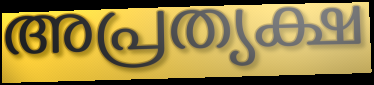
അപ്രത്യക്ഷ